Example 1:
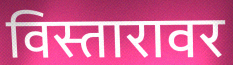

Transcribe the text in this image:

विस्तारावर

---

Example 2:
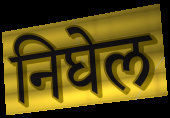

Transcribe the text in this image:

निघेल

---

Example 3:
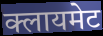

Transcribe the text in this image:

क्लायमेट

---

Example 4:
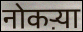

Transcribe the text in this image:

नोकऱ्‍या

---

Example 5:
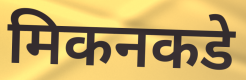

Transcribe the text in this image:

मिकनकडे